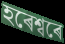
হৰেশ্বৰে